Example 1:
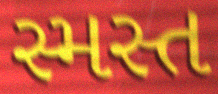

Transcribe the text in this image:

સ્મસ્ત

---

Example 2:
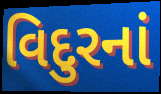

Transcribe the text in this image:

વિદુરનાં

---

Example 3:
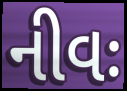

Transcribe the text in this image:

નીવઃ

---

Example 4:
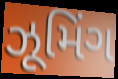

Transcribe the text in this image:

ઝૂમિંગ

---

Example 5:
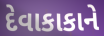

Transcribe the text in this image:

દેવાકાકાને